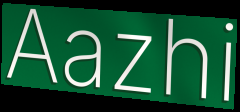
Aazhi